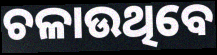
ଚଳାଉଥିବେ